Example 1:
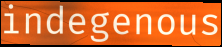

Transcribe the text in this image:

indegenous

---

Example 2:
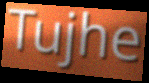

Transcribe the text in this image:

Tujhe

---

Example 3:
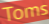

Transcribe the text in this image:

Toms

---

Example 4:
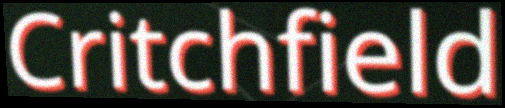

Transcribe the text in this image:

Critchfield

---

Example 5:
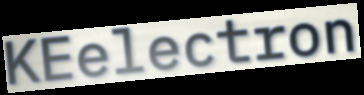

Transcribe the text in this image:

KEelectron